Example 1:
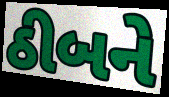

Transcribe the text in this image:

ઠીબને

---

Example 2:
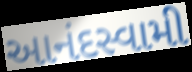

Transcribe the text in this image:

આનંદસ્વામી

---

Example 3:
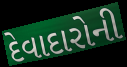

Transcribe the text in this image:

દેવાદારોની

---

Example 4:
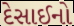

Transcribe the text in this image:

દેસાઈનો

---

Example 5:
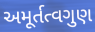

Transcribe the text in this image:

અમૂર્તત્વગુણ